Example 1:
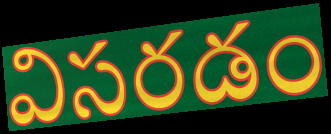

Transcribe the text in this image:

విసరడం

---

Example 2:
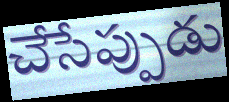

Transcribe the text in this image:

చేసేప్పుడు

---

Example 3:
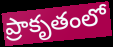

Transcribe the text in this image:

ప్రాకృతంలో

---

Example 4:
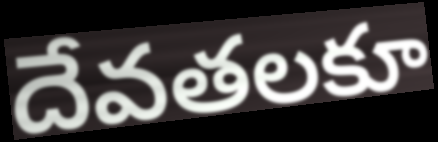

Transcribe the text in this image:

దేవతలకూ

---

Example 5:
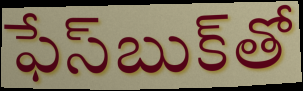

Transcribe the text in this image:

ఫేస్‌బుక్‌తో